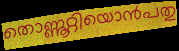
തൊണ്ണൂറ്റിയൊൻപതു